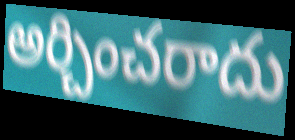
అర్చించరాదు